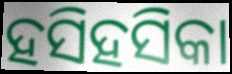
ହସିହସିକା